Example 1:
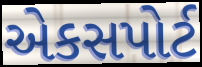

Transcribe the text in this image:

એકસપોર્ટ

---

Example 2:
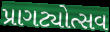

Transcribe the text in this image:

પ્રાગટ્યોત્સવ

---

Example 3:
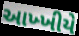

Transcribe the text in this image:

આખ્ખીયે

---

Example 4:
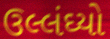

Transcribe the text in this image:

ઉલ્લંઘ્યો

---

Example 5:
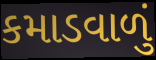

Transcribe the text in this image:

કમાડવાળું